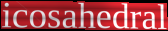
icosahedral